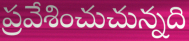
ప్రవేశించుచున్నది